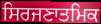
ਸਿਰਜਣਾਤਮਿਕ